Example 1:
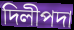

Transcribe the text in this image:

দিলীপদা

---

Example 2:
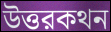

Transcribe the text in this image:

উত্তরকথন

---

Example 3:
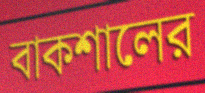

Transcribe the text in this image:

বাকশালের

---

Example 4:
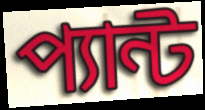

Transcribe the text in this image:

প্যান্ট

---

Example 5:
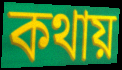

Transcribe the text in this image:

কথায়